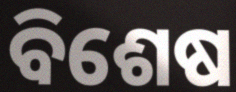
ବିଶେଷ